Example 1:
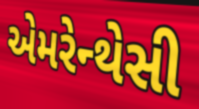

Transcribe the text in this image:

એમરેન્થેસી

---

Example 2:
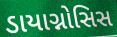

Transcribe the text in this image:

ડાયાગ્નોસિસ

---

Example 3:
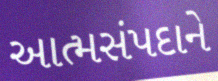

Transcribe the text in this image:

આત્મસંપદાને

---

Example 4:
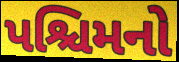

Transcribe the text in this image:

પશ્ચિમનો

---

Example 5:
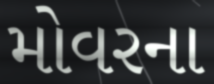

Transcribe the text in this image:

મોવરના